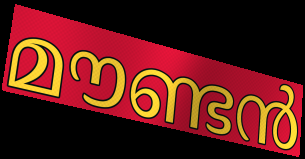
മൗണ്ടൻ